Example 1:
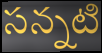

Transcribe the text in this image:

సన్నటి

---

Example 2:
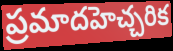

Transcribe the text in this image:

ప్రమాదహెచ్చరిక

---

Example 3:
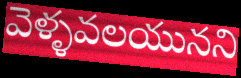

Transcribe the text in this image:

వెళ్ళవలయునని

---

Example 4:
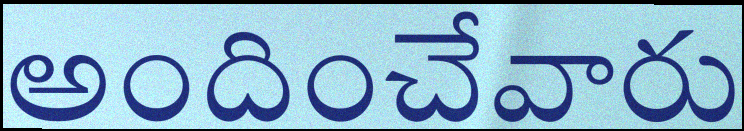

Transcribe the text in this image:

అందించేవారు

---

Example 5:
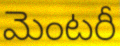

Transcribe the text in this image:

మెంటరీ